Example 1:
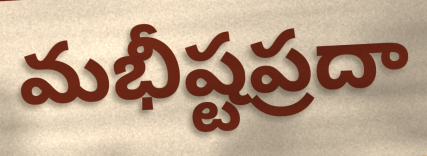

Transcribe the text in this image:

మభీష్టప్రదా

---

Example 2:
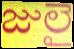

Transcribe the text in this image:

జులై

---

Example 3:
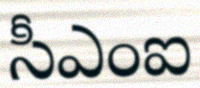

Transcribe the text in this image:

సీఎంఐ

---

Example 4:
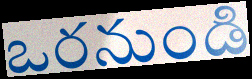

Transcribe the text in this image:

ఒరనుండి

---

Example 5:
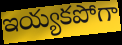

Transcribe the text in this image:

ఇయ్యకపోగా